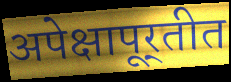
अपेक्षापूर्तीत